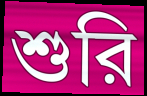
শুরি